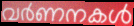
വർണനകൾ